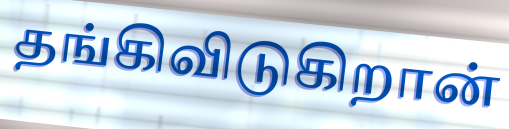
தங்கிவிடுகிறான்